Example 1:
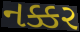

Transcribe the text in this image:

નક્કર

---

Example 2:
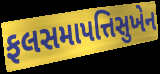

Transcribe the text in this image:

ફલસમાપત્તિસુખેન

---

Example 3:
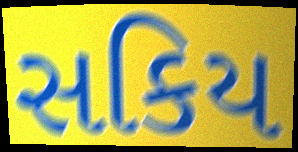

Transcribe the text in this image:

સકિય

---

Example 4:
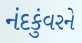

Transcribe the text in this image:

નંદકુંવરને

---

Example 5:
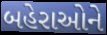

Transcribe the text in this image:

બહેરાઓને